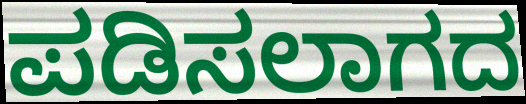
ಪಡಿಸಲಾಗದ